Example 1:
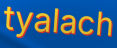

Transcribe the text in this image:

tyalach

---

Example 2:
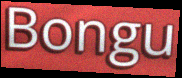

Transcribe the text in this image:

Bongu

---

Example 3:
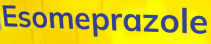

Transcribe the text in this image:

Esomeprazole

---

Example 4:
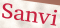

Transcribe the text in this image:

Sanvi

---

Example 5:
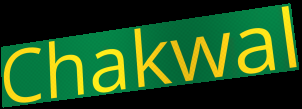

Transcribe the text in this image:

Chakwal